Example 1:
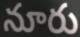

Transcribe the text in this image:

నూరు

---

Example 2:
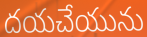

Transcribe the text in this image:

దయచేయును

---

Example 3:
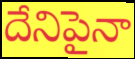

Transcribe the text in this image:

దేనిపైనా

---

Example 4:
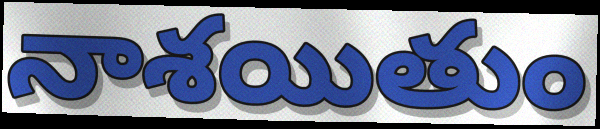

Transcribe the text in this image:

నాశయితుం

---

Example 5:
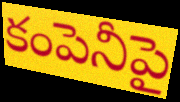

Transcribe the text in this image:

కంపెనీపై